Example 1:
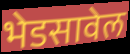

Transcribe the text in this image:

भेडसावेल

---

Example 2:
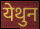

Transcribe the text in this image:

येथुन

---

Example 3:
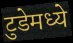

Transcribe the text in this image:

टुडेमध्ये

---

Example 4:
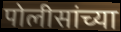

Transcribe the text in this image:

पोलीसांच्या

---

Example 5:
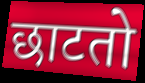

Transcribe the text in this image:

छाटतो